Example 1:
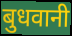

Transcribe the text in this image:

बुधवानी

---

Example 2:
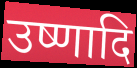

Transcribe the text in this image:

उष्णादि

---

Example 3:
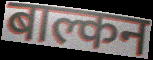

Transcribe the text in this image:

बाल्कन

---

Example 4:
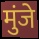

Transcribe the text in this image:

मुंजे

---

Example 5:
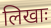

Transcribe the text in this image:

लिखाः